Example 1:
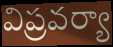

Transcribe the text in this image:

విప్రవర్యా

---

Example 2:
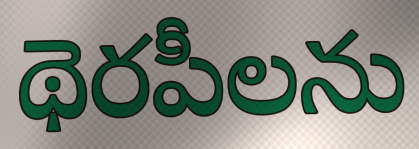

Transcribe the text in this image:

థెరపీలను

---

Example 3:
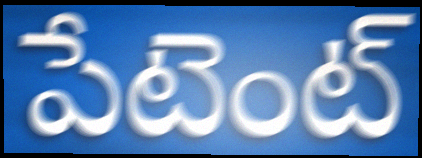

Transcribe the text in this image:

పేటెంట్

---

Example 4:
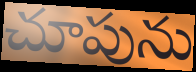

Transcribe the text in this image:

చూపును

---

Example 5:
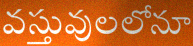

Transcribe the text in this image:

వస్తువులలోనూ